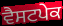
ਵੈਸਟਪੇਕ